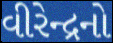
વીરેન્દ્રનો